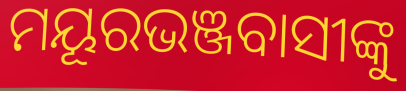
ମୟୂରଭଞ୍ଜବାସୀଙ୍କୁ